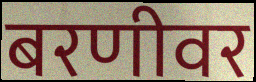
बरणीवर